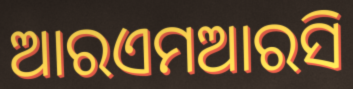
ଆରଏମଆରସି